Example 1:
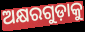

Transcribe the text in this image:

ଅକ୍ଷରଗୁଡ଼ାକୁ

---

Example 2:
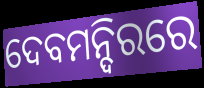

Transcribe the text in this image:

ଦେବମନ୍ଦିରରେ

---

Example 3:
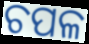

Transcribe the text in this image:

ଚପଳ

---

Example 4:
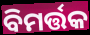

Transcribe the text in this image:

ବିମର୍ତ୍ତକ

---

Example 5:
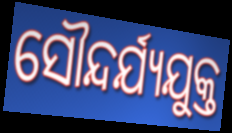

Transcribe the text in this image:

ସୌନ୍ଦର୍ଯ୍ୟଯୁକ୍ତ